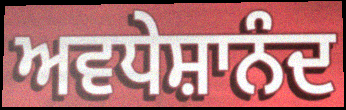
ਅਵਧੇਸ਼ਾਨੰਦ